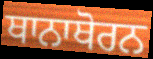
ਥਾਨਾਥੋਰਨ